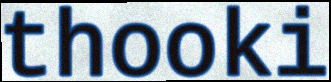
thooki